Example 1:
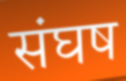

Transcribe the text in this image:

संघष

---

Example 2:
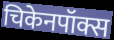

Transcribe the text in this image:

चिकेनपॉक्स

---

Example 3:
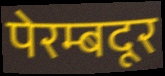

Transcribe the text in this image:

पेरम्बदूर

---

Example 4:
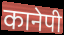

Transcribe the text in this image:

कानेपी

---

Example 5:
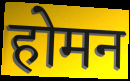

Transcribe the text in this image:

होमन